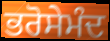
ਭਰੋਸੇਮੰਦ